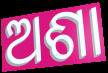
ଅଶା